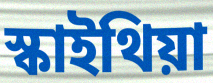
স্কাইথিয়া